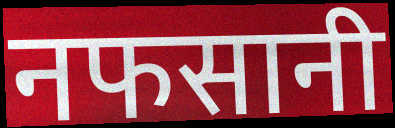
नफसानी